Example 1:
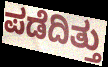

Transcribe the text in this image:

ಪಡೆದಿತ್ತು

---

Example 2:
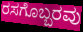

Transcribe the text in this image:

ರಸಗೊಬ್ಬರವು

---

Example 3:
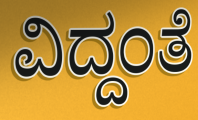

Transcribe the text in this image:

ವಿದ್ದಂತೆ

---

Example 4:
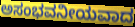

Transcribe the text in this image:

ಅಸಂಭವನೀಯವಾದ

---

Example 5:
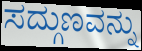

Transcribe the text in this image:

ಸದ್ಗುಣವನ್ನು